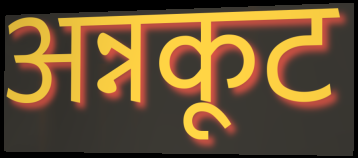
अन्नकूट